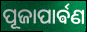
ପୂଜାପାର୍ଵଣ